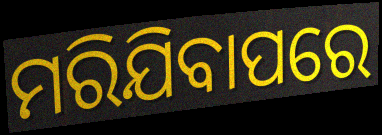
ମରିଯିବାପରେ